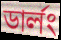
ডার্লং